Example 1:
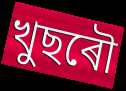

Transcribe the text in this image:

খুছৰৌ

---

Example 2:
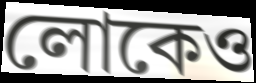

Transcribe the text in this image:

লোকেও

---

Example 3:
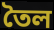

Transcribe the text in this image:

তৈল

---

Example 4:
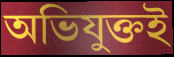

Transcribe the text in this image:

অভিযুক্তই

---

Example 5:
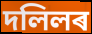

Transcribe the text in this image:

দলিলৰ